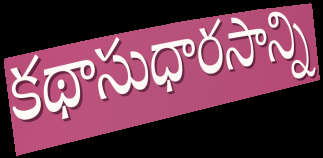
కథాసుధారసాన్ని